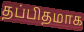
தப்பிதமாக